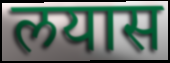
लयास